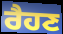
ਰੈਹਣ